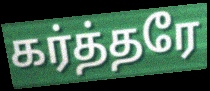
கர்த்தரே